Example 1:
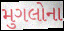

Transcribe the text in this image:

મુગલોના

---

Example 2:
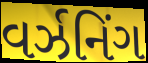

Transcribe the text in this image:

વર્ઝનિંગ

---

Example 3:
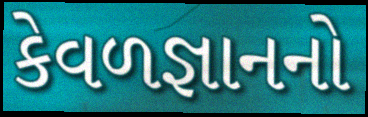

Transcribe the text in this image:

કેવળજ્ઞાનનો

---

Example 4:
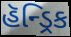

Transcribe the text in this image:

હૅન્ડ્રિક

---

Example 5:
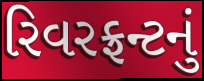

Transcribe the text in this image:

રિવરફ્રન્ટનું